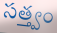
సత్త్వం